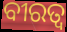
ବୀରତ୍ୱ